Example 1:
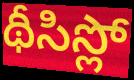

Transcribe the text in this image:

థీసిస్లో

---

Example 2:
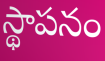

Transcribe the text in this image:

స్థాపనం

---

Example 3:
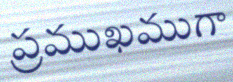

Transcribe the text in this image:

ప్రముఖముగా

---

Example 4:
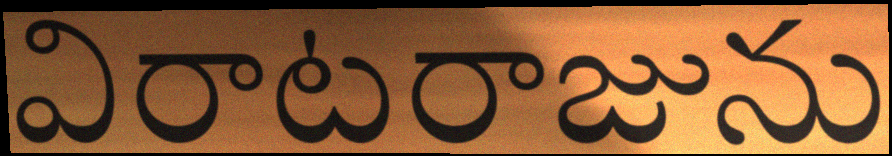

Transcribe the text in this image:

విరాటరాజును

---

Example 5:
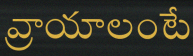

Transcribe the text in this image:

వ్రాయాలంటే